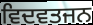
ਵਿਦਵਤਜਨ